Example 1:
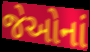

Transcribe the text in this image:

જેઓનાં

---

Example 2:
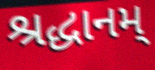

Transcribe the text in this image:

શ્રદ્ધાનમ્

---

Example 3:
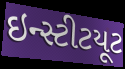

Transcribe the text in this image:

ઇન્સ્ટીટયૂટ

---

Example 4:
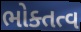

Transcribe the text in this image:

ભોક્તત્વ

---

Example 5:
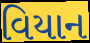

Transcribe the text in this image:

વિયાન